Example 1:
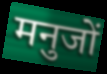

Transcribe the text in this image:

मनुजों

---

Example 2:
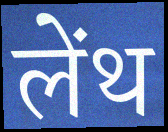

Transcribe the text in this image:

लेंथ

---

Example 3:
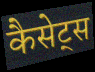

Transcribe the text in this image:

कैसेट्स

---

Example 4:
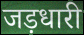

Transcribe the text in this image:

जड़धारी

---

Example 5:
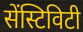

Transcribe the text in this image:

सेंस्टिविटी